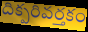
దిక్పరివర్తకం